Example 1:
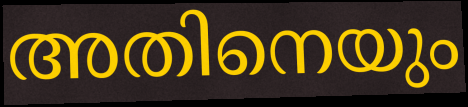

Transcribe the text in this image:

അതിനെയും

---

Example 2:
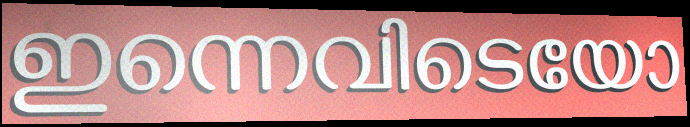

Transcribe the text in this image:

ഇന്നെവിടെയോ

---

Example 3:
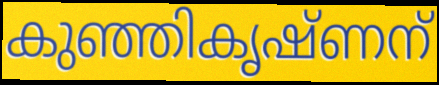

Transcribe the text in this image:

കുഞ്ഞികൃഷ്ണന്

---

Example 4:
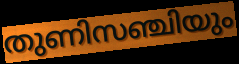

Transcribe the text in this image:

തുണിസഞ്ചിയും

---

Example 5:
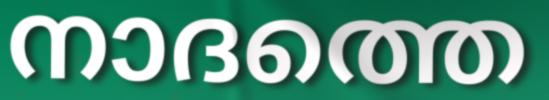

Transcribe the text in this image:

നാദത്തെ